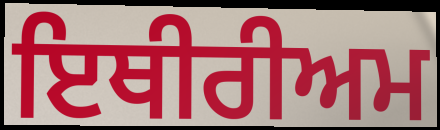
ਇਥੀਰੀਅਮ